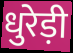
धुरेड़ी